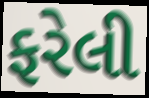
ફરેલી